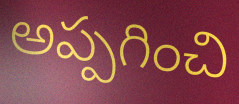
అప్పగించి